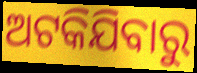
ଅଟକିଯିବାରୁ